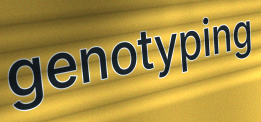
genotyping